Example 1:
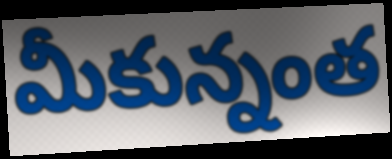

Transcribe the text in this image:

మీకున్నంత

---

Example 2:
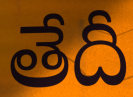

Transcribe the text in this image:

తేదీ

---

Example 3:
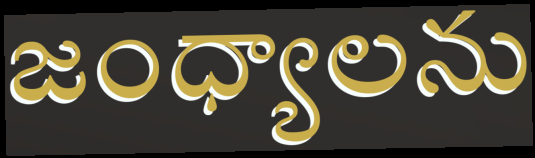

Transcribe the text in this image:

జంధ్యాలను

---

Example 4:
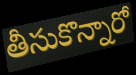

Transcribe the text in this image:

తీసుకొన్నారో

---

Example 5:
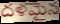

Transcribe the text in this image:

దళమైన